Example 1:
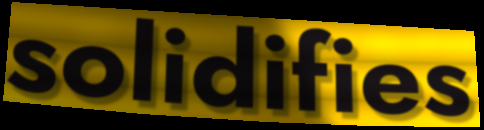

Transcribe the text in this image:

solidifies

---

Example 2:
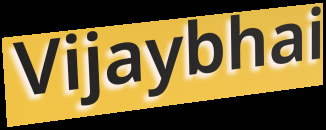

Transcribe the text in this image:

Vijaybhai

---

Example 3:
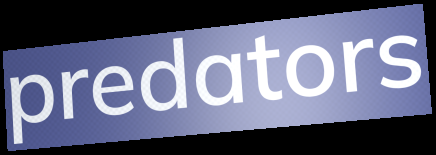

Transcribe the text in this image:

predators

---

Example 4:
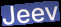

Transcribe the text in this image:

Jeev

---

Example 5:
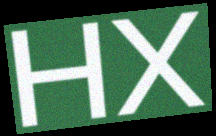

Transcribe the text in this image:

HX